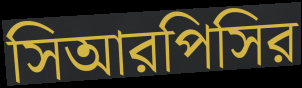
সিআরপিসির